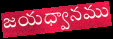
జయధ్వానము